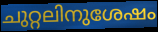
ചുറ്റലിനുശേഷം